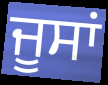
ਜੂਸਾਂ